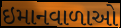
ઇમાનવાળાઓ